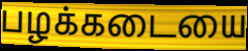
பழக்கடையை